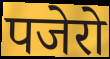
पजेरो